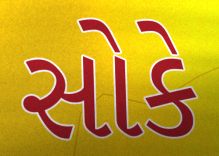
સોકે